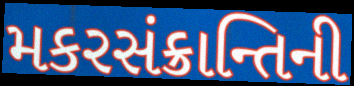
મકરસંક્રાન્તિની